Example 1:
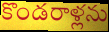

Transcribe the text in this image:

కొండరాళ్లను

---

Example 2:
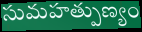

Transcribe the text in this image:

సుమహత్పుణ్యం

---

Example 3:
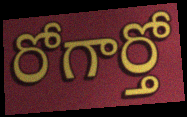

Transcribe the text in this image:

రోగార్తో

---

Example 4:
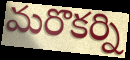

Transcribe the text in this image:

మరొకర్ని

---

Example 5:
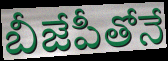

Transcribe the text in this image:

బీజేపీతోనే